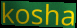
kosha